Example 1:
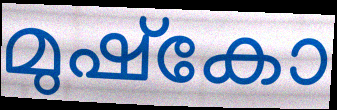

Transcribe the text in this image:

മുഷ്കോ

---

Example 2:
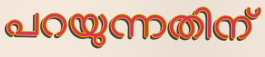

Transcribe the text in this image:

പറയുന്നതിന്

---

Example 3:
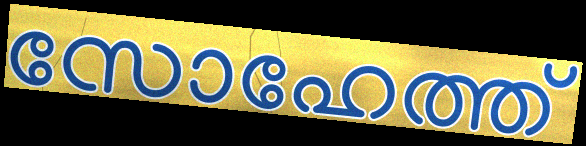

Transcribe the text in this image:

സോഹേത്ത്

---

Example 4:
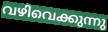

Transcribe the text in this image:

വഴിവെക്കുന്നു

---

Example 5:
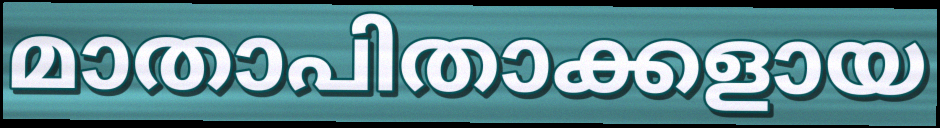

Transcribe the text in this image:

മാതാപിതാക്കളായ